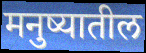
मनुष्यातील